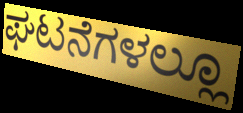
ಘಟನೆಗಳಲ್ಲೂ